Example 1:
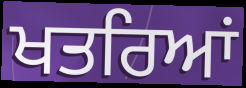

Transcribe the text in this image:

ਖਤਰਿਆਂ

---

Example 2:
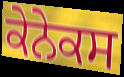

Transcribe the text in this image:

ਕੇਨੇਕਸ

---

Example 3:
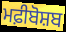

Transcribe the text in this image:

ਮਫ਼ੀਬੋਸ਼ਬ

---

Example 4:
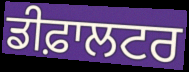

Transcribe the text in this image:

ਡੀਫ਼ਾਲਟਰ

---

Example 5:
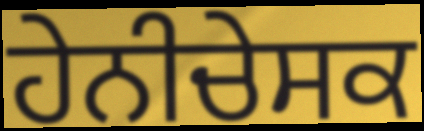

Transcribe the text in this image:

ਹੇਨੀਚੇਸਕ